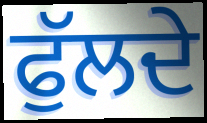
ਫੁੱਲਦੇ